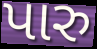
પારુ